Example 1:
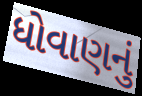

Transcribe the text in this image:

ધોવાણનું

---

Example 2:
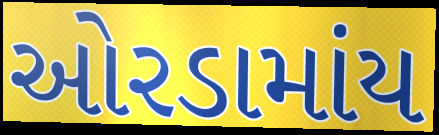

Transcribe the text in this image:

ઓરડામાંય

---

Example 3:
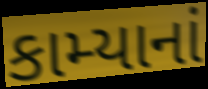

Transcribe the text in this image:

કામ્યાનાં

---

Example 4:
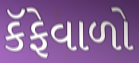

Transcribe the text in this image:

કૅફેવાળો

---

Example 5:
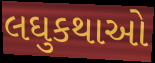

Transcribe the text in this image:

લઘુકથાઓ